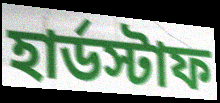
হার্ডস্টাফ